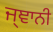
ਜ੍ਞਾਨੀ